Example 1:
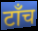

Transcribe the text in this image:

टाँच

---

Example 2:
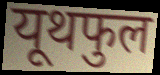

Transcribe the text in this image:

यूथफुल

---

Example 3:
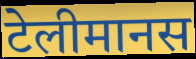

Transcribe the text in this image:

टेलीमानस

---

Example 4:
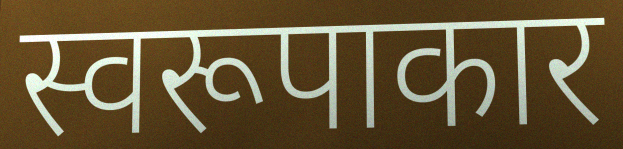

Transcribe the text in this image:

स्वरूपाकार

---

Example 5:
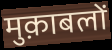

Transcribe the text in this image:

मुक़ाबलों